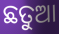
ଛତୁଆ